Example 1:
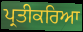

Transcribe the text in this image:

ਪ੍ਰਤੀਕਰਿਆ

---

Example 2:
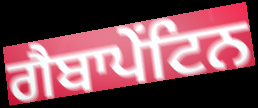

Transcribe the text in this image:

ਗੈਬਾਪੇਂਟਿਨ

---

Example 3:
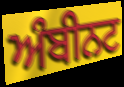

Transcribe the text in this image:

ਅੰਬੀਨਟ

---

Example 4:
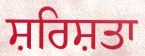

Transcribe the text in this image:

ਸ਼ਰਿਸ਼ਤਾ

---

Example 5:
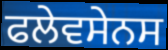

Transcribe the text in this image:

ਫਲੇਵਸੇਨਸ